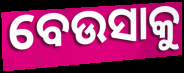
ବେଉସାକୁ